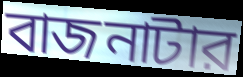
বাজনাটার